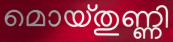
മൊയ്തുണ്ണി